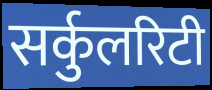
सर्कुलरिटी